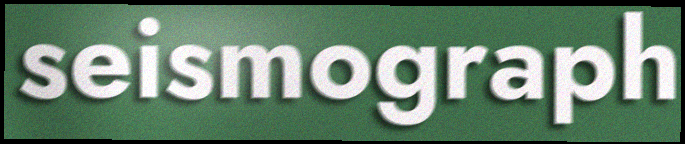
seismograph